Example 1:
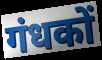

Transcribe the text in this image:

गंधकों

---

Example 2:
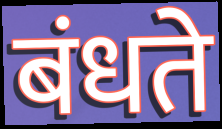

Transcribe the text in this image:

बंधते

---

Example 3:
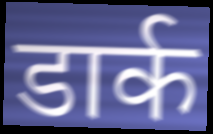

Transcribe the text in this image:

डार्क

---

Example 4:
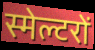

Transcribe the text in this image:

स्मेल्टरों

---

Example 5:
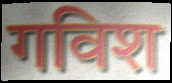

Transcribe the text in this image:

गविश